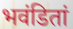
भवंडितां